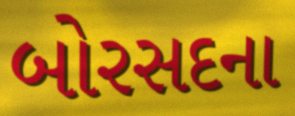
બોરસદના